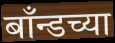
बाँन्डच्या